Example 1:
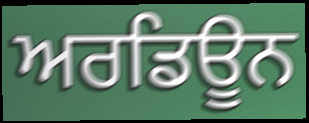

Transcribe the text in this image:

ਅਰਡਿਊਨ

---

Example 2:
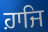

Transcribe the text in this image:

ਹ਼ਾਜਿ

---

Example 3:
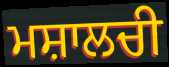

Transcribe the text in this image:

ਮਸ਼ਾਲਚੀ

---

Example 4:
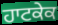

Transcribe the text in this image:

ਹਾਟਕੇਕ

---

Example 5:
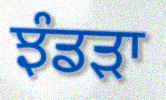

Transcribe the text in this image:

ਝੰਡੜਾ